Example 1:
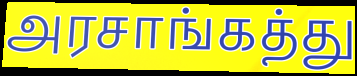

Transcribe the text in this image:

அரசாங்கத்து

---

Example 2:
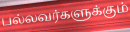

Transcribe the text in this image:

பல்லவர்களுக்கும்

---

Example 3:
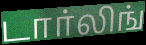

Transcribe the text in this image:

டார்லிங்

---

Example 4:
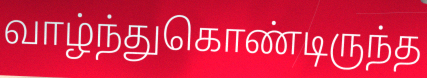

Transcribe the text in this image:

வாழ்ந்துகொண்டிருந்த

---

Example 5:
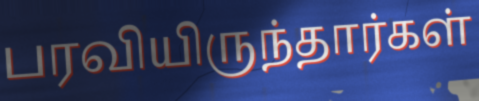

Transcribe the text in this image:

பரவியிருந்தார்கள்